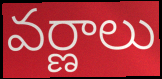
వర్ణాలు